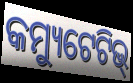
କମ୍ୟୁଟେଟିଭ୍